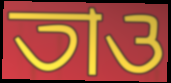
তাও